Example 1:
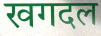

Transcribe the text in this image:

खगदल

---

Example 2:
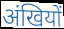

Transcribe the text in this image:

अंखियों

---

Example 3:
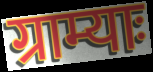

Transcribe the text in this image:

ग्राम्याः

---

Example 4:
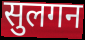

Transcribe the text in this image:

सुलगन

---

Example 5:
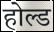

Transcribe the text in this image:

होल्ड